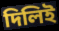
দিলিই